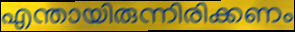
എന്തായിരുന്നിരിക്കണം